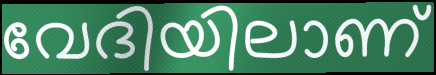
വേദിയിലാണ്